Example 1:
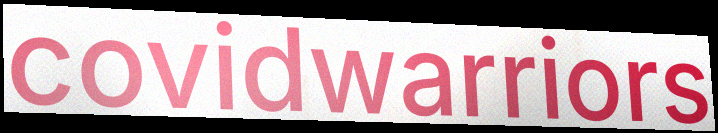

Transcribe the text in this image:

covidwarriors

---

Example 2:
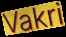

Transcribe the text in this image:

Vakri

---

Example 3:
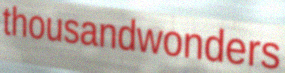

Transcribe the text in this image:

thousandwonders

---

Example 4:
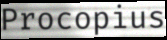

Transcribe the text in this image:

Procopius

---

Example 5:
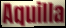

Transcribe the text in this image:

Aquilla